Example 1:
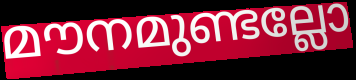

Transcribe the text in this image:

മൗനമുണ്ടല്ലോ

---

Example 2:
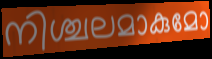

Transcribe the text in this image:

നിശ്ചലമാകുമോ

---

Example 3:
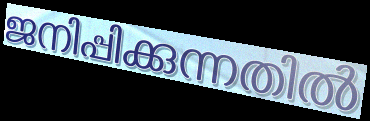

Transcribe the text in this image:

ജനിപ്പിക്കുന്നതിൽ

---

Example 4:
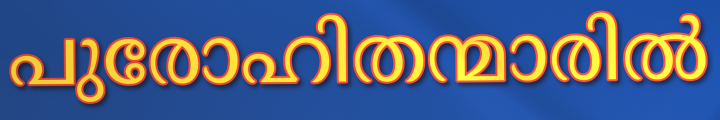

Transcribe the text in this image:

പുരോഹിതന്മാരിൽ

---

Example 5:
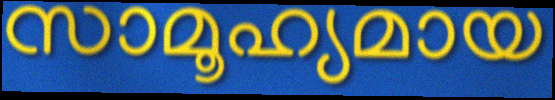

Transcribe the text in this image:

സാമൂഹ്യമായ